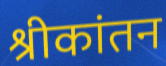
श्रीकांतन